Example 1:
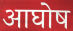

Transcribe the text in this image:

आघोष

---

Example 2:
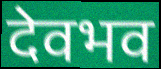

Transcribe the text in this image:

देवभव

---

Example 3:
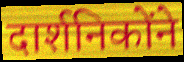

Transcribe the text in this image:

दार्शनिकोंने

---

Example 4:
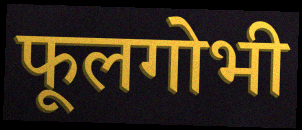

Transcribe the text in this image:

फूलगोभी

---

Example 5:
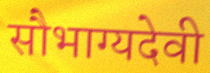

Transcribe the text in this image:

सौभाग्यदेवी